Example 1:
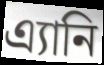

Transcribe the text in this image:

এ্যানি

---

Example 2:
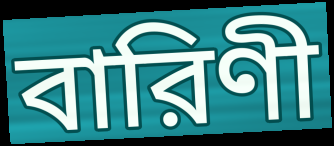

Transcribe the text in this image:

বারিণী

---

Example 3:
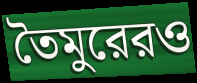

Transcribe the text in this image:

তৈমুরেরও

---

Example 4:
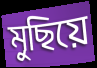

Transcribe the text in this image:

মুছিয়ে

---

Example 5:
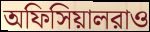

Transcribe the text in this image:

অফিসিয়ালরাও